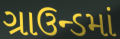
ગ્રાઉન્ડમાં